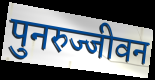
पुनरुज्‍जीवन